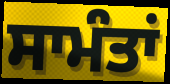
ਸਾਮੰਤਾਂ